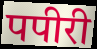
पपीरी